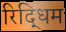
रिद्धिम